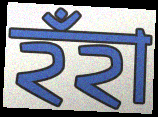
হঁহা